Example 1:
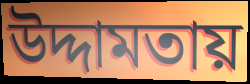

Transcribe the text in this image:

উদ্দামতায়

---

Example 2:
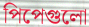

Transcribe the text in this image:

পিপেগুলো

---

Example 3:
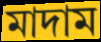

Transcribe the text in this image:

মাদাম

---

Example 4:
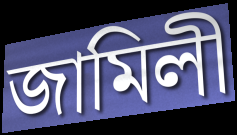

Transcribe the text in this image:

জামিলী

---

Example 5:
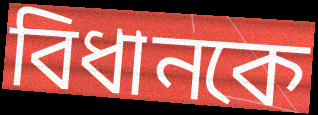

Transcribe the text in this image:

বিধানকে